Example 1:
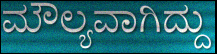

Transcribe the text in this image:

ಮೌಲ್ಯವಾಗಿದ್ದು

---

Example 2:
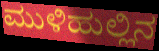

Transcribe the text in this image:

ಮುಳಿಹುಲ್ಲಿನ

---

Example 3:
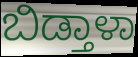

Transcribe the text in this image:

ಬಿಡ್ತಾಳಾ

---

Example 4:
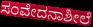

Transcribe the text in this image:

ಸಂವೇದನಾಶೀಲೆ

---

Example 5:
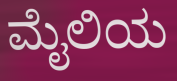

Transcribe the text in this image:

ಮೈಲಿಯ